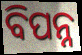
ବିପନ୍ନ